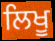
ਲਿਖੂ